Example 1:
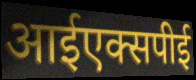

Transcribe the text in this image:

आईएक्सपीई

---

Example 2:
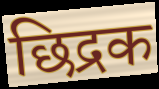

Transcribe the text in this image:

छिद्रक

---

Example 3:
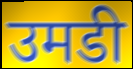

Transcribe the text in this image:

उमडी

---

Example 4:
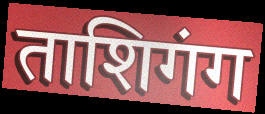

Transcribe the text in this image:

ताशिगंग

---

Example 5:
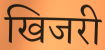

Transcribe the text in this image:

खिजरी